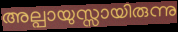
അല്പായുസ്സായിരുന്നു